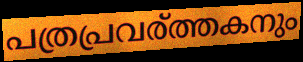
പത്രപ്രവര്ത്തകനും